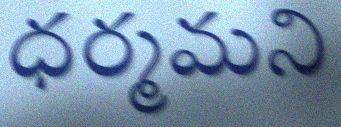
ధర్మమని